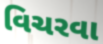
વિચરવા